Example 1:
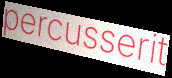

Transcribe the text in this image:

percusserit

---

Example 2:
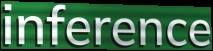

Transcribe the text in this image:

inference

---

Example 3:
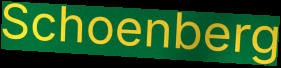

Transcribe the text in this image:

Schoenberg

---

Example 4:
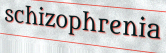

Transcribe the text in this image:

schizophrenia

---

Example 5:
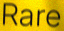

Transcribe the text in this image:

Rare